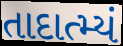
તાદાત્મ્યં